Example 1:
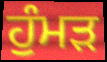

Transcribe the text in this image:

ਹੁੰਮੜ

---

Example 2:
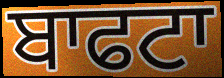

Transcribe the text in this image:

ਬਾਫਟਾ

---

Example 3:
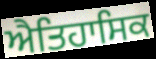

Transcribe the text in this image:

ਐਤਿਹਾਸਿਕ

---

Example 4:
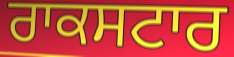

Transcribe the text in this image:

ਰਾਕਸਟਾਰ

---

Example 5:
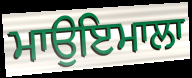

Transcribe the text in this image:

ਮਾਉਇਮਾਲਾ